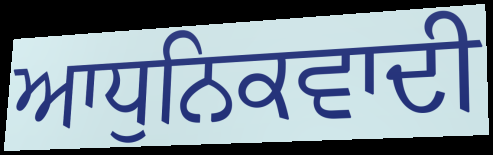
ਆਧੁਨਿਕਵਾਦੀ